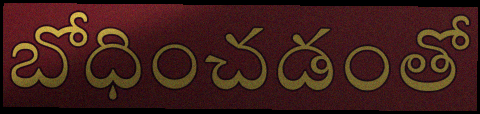
బోధించడంతో